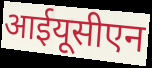
आईयूसीएन